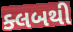
ક્લબથી